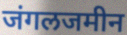
जंगलजमीन